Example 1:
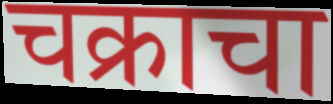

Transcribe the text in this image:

चक्राचा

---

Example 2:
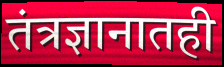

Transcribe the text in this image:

तंत्रज्ञानातही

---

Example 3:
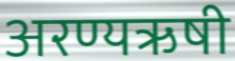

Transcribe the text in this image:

अरण्यऋषी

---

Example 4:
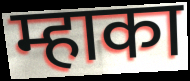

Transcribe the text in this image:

म्हाका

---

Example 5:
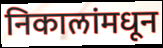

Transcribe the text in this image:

निकालांमधून